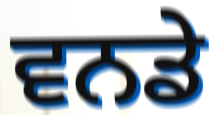
ਵਨਡੇ